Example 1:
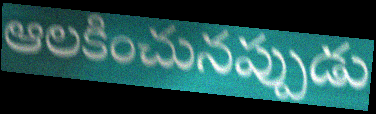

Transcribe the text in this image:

ఆలకించునప్పుడు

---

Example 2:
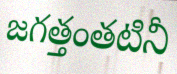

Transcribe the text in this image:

జగత్తంతటినీ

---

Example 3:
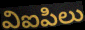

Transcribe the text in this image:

విఐపిలు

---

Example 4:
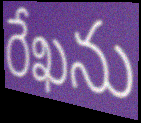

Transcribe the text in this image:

రేఖను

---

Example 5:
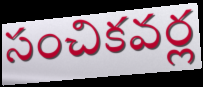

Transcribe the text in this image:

సంచికవర్ల